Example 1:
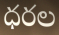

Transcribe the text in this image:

ధరల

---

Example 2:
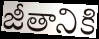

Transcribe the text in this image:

జీతానికి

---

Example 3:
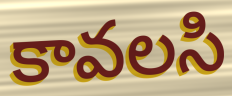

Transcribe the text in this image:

కావలసి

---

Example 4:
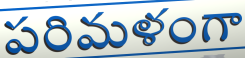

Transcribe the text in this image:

పరిమళంగా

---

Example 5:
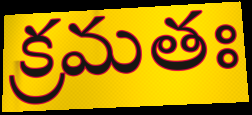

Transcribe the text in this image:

క్రమతః